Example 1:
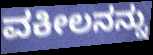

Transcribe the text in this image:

ವಕೀಲನನ್ನು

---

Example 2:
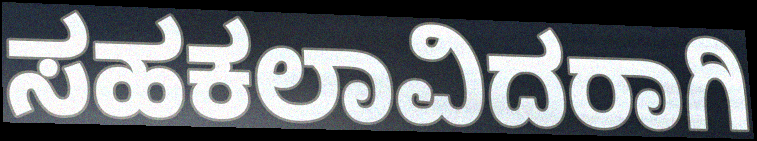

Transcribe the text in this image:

ಸಹಕಲಾವಿದರಾಗಿ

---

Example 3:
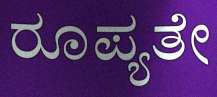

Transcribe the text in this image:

ರೂಪ್ಯತೇ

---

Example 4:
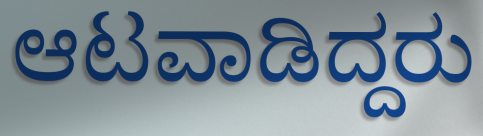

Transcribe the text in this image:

ಆಟವಾಡಿದ್ದರು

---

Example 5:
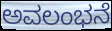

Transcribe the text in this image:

ಅವಲಂಭನೆ